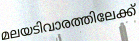
മലയടിവാരത്തിലേക്ക്